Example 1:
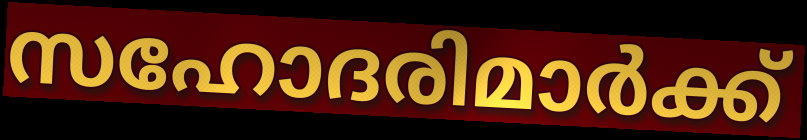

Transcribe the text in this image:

സഹോദരിമാർക്ക്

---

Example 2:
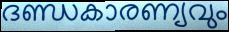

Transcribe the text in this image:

ദണ്ഡകാരണ്യവും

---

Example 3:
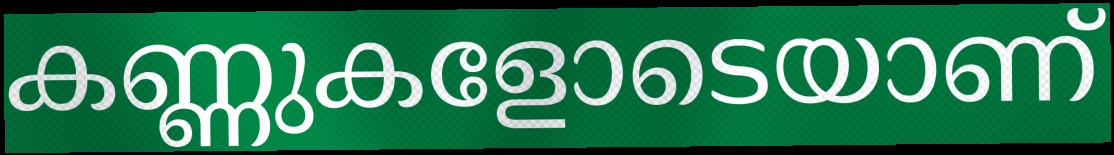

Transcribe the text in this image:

കണ്ണുകളോടെയാണ്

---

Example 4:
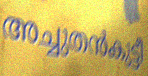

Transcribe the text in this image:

അച്ചുതൻകുട്ടീ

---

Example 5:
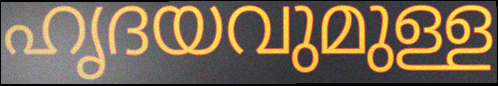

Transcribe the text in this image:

ഹൃദയവുമുള്ള